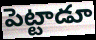
పెట్టాడూ